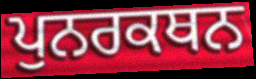
ਪੁਨਰਕਥਨ